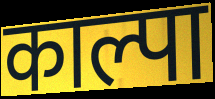
काल्पा